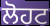
ਲੋਹਟ